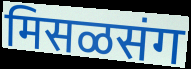
मिसळसंग